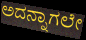
ಅದನ್ನಾಗಲೇ